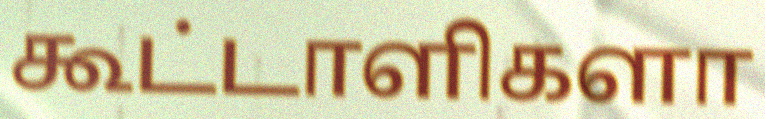
கூட்டாளிகளா